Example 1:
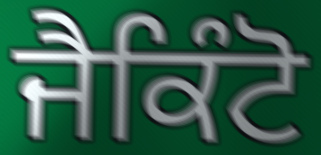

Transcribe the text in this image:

ਜੈਕਿੰਟੋ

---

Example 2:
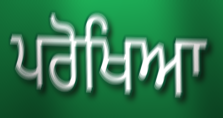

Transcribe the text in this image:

ਪਰੋਖਿਆ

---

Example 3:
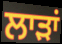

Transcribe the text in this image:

ਲਾੜਾਂ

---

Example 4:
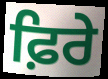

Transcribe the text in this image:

ਫ਼ਿਰੇ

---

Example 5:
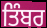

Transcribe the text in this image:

ਤਿੰਬਰ